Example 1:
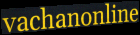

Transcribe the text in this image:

vachanonline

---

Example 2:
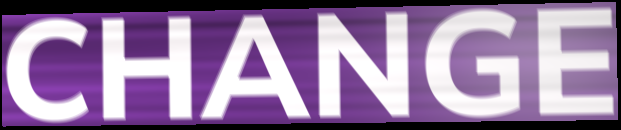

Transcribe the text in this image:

CHANGE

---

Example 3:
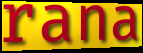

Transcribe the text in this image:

rana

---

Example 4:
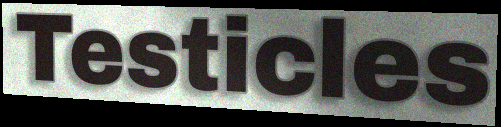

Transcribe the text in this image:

Testicles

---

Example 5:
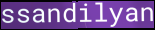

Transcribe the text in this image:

ssandilyan